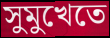
সুমুখেতে